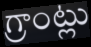
గ్రాంట్లు